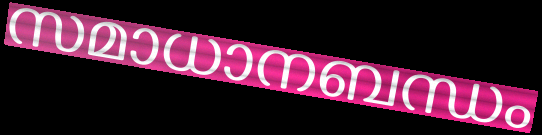
സമാധാനബന്ധം